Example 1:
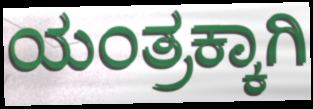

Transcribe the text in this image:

ಯಂತ್ರಕ್ಕಾಗಿ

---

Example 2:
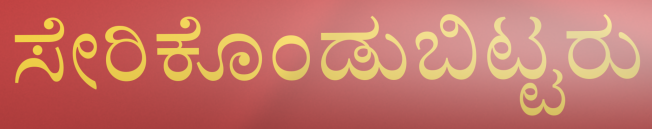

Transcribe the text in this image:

ಸೇರಿಕೊಂಡುಬಿಟ್ಟರು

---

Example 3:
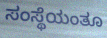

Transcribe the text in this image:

ಸಂಸ್ಥೆಯಂತೂ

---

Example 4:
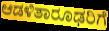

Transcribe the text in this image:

ಆಡಳಿತಾರೂಢರಿಗೆ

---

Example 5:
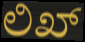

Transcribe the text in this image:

ಲಿಖ್